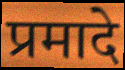
प्रमादे